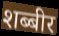
शब्बीर